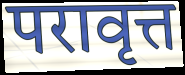
परावृत्त